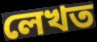
লেখত